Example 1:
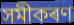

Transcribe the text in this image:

সমীকৰণ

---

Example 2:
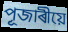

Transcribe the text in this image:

পূজাৰীয়ে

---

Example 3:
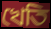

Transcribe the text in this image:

খেতি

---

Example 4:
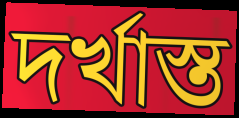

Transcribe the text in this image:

দৰ্খাস্ত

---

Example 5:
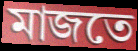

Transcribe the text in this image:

মাজতে